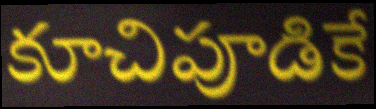
కూచిపూడికే